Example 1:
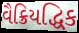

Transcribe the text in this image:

વૈક્રિયદ્ધિક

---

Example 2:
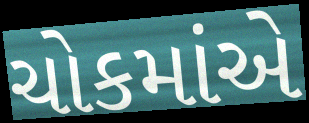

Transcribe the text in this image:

ચોકમાંએ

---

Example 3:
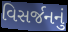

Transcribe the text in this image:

વિસર્જનનું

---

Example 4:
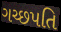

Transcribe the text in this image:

ગચ્છપતિ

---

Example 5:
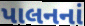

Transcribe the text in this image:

પાલનનાં